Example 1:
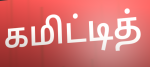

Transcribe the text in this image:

கமிட்டித்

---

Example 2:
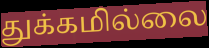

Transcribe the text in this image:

துக்கமில்லை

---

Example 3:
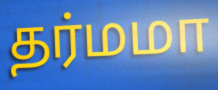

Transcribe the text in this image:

தர்மமா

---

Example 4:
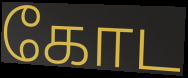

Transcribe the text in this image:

கோட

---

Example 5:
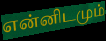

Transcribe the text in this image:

என்னிடமும்